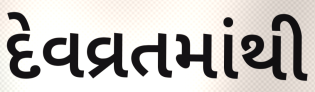
દેવવ્રતમાંથી